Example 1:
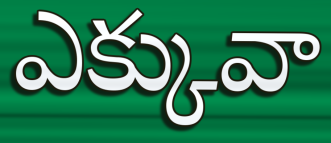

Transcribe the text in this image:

ఎక్కువా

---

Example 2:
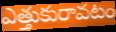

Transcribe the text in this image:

ఎత్తుకురావటం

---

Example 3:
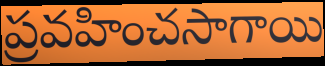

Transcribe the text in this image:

ప్రవహించసాగాయి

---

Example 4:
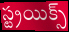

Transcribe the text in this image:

స్ట్రయిక్స్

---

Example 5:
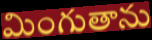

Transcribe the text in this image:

మింగుతాను